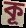
কূ